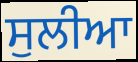
ਸੁਲੀਆ